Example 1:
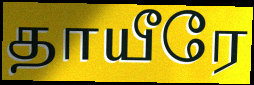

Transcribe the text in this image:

தாயீரே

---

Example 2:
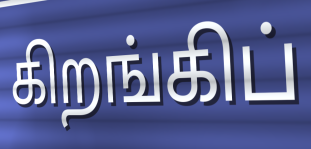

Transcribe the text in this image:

கிறங்கிப்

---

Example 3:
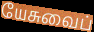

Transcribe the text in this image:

யேசுவைப்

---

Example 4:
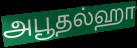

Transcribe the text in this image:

அபூதல்ஹா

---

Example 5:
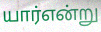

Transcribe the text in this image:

யார்என்று